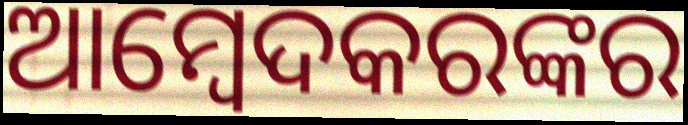
ଆମ୍ବେଦକରଙ୍କର